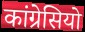
कांग्रेसियो